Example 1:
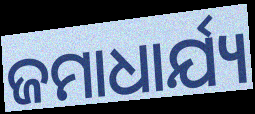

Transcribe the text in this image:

ଜମାଧାର୍ଯ୍ୟ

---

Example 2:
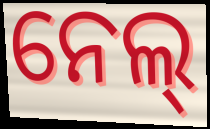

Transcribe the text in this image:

ନେଲ୍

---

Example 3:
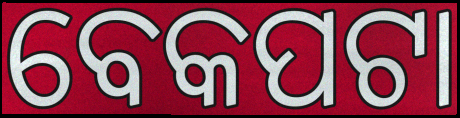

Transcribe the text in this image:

ବେକପଟା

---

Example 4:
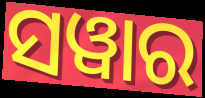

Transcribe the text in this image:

ସୱାର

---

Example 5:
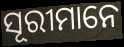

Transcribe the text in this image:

ସୂରୀମାନେ